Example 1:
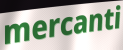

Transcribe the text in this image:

mercanti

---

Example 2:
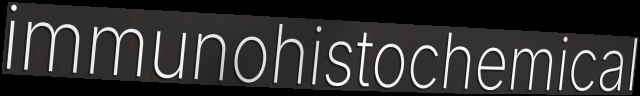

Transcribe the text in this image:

immunohistochemical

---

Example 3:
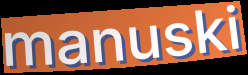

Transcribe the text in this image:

manuski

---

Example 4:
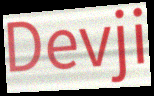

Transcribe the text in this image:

Devji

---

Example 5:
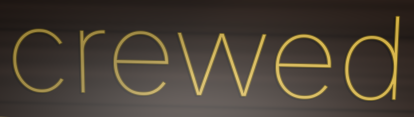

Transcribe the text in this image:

crewed